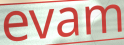
evam